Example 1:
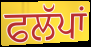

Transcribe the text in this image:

ਫਲੱਪਾਂ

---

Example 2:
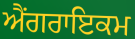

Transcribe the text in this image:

ਐਂਗਰਾਇਕਮ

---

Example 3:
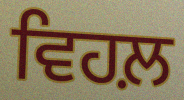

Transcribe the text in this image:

ਵਿਹਲ਼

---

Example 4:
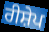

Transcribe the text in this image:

ਰੀਸ਼ੇਪ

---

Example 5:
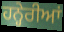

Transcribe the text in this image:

ਹਨ੍ਹੇਰੀਆਂ